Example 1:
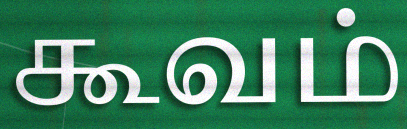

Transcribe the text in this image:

கூவம்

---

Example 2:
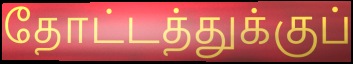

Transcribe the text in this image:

தோட்டத்துக்குப்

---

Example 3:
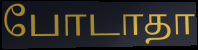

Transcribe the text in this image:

போடாதா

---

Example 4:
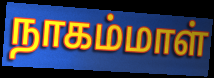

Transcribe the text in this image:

நாகம்மாள்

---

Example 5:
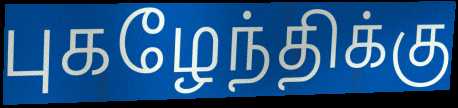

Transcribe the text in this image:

புகழேந்திக்கு